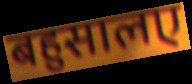
बहुसालए